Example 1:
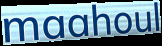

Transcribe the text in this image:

maahoul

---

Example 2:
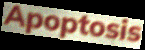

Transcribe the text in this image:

Apoptosis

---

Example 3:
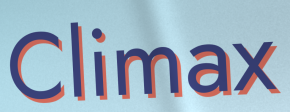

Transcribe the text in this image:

Climax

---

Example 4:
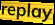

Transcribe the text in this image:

replay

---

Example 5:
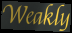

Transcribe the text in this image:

Weakly